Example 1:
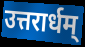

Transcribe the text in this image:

उत्तरार्धम्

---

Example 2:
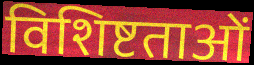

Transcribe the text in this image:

विशिष्टताओं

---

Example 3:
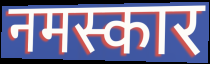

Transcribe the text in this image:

नमस्कार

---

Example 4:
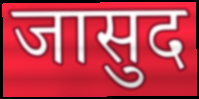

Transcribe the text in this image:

जासुद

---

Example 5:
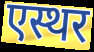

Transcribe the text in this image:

एस्थर